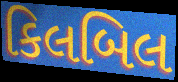
કિલબિલ